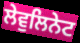
ਲੇਵੁਲਿਨੇਟ